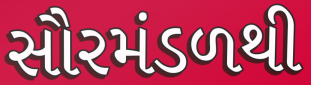
સૌરમંડળથી